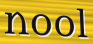
nool